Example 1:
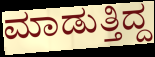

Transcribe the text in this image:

ಮಾಡುತ್ತಿದ್ದ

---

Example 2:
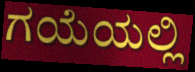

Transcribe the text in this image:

ಗಯೆಯಲ್ಲಿ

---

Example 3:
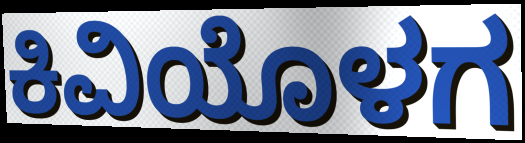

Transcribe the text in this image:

ಕಿವಿಯೊಳಗ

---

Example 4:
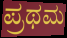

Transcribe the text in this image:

ಪ್ರಥಮ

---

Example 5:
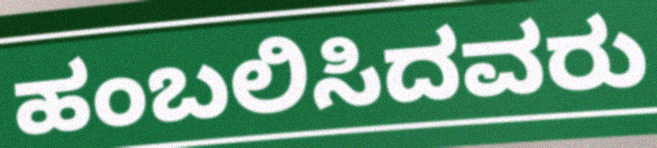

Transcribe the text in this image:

ಹಂಬಲಿಸಿದವರು